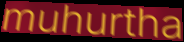
muhurtha